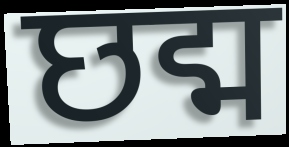
छद्म